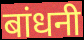
बांधनी